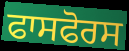
ਫਾਸਫੋਰਸ